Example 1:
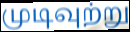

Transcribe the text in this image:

முடிவுற்று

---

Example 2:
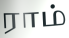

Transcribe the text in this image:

ராம்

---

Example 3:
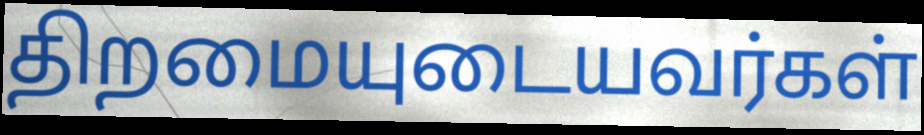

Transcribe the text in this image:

திறமையுடையவர்கள்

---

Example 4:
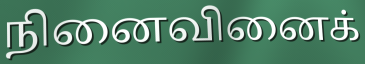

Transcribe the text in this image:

நினைவினைக்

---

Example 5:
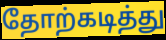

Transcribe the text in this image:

தோற்கடித்து